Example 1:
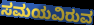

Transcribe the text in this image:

ಸಮಯವಿರುವ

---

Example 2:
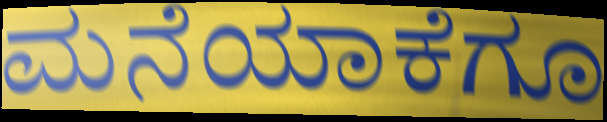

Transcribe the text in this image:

ಮನೆಯಾಕೆಗೂ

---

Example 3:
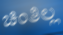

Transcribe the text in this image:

ಚಿಂತಿಲ್ಲ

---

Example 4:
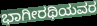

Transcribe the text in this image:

ಭಾಗೀರಥಿಯವರ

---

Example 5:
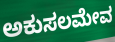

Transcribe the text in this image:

ಅಕುಸಲಮೇವ